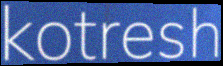
kotresh